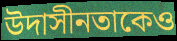
উদাসীনতাকেও